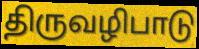
திருவழிபாடு